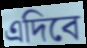
এদিবে